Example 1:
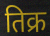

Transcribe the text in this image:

तिक्र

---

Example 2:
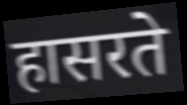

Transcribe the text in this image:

हासरते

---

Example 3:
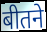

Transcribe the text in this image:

बीतने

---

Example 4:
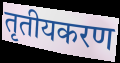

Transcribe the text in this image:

तृतीयकरण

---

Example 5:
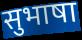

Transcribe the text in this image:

सुभाषा